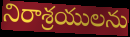
నిరాశ్రయులను